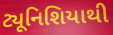
ટ્યૂનિશિયાથી